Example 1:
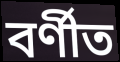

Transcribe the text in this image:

বর্ণীত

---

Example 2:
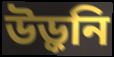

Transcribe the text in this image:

উড়ুনি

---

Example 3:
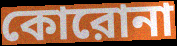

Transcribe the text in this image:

কোরোনা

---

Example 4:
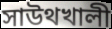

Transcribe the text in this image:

সাউথখালী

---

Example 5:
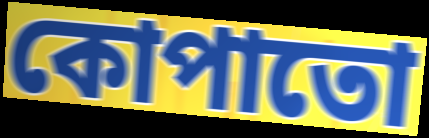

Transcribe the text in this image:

কোপাতো